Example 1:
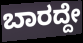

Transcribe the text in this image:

ಬಾರದ್ದೇ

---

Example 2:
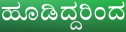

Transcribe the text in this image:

ಹೂಡಿದ್ದರಿಂದ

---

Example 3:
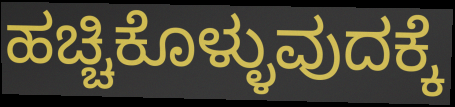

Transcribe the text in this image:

ಹಚ್ಚಿಕೊಳ್ಳುವುದಕ್ಕೆ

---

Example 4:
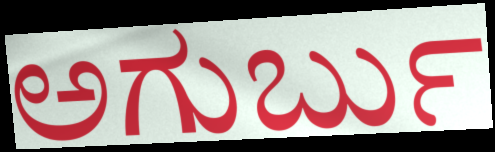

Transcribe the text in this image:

ಅಗುರ್ಬು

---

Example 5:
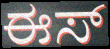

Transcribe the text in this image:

ಈಸ್